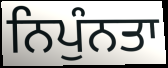
ਨਿਪੁੰਨਤਾ